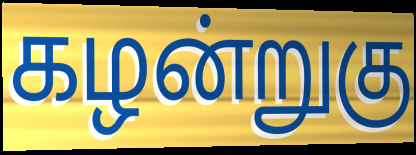
கழன்றுகு